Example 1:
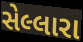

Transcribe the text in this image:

સેલ્લારા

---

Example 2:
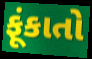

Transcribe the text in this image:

ફૂંકાતો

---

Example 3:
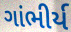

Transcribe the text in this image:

ગાંભીર્ય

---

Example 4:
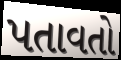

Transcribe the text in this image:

પતાવતો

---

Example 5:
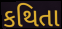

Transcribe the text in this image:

કથિતા